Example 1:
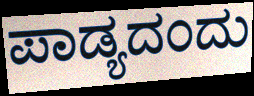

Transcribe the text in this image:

ಪಾಡ್ಯದಂದು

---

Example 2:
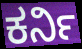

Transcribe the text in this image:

ಕರ್ನಿ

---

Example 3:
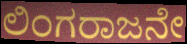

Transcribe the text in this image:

ಲಿಂಗರಾಜನೇ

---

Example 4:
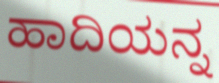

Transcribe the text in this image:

ಹಾದಿಯನ್ನ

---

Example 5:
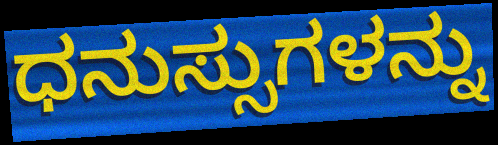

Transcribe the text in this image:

ಧನುಸ್ಸುಗಳನ್ನು